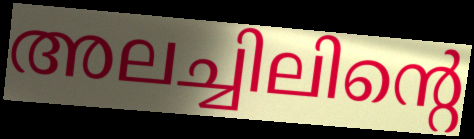
അലച്ചിലിന്റെ